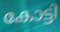
കോട്ടി